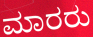
ಮಾರರು